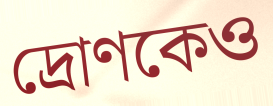
দ্রোণকেও